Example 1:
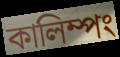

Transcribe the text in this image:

কালিম্পং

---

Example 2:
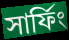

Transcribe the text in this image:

সার্ফিং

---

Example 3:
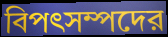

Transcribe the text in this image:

বিপৎসম্পদের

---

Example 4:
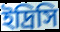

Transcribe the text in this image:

ইদ্রিসি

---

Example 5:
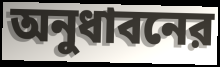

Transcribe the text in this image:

অনুধাবনের